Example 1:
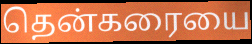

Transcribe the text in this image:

தென்கரையை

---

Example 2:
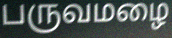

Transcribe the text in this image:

பருவமழை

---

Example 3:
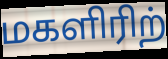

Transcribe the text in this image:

மகளிரிற்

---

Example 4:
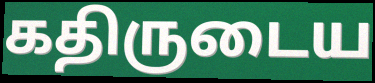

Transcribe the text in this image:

கதிருடைய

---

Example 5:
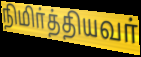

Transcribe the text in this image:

நிமிர்த்தியவர்